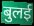
बुलई